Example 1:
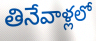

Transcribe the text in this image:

తినేవాళ్లలో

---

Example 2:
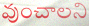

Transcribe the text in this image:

వుంచాలని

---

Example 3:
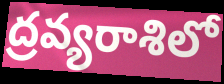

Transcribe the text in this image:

ద్రవ్యరాశిలో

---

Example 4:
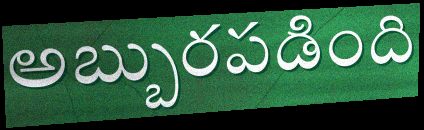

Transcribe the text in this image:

అబ్బురపడింది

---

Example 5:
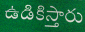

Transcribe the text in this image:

ఉడికిస్తారు